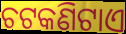
ଚଟକଣିଟାଏ